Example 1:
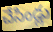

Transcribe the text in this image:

చేసిండ్లు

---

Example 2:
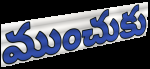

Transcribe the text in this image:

ముంచుకు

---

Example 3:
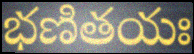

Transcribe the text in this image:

భణితయః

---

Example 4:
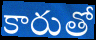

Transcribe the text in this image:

కారుతో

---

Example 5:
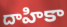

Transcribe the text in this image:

దాహికా